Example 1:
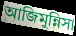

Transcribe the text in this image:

আজিমুন্নিসা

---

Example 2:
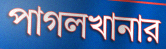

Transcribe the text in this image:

পাগলখানার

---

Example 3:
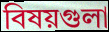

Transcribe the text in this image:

বিষয়গুলা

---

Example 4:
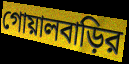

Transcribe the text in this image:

গোয়ালবাড়ির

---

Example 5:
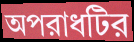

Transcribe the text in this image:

অপরাধটির